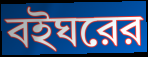
বইঘরের